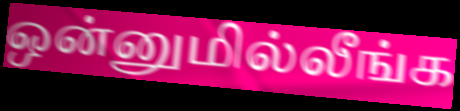
ஒன்னுமில்லீங்க